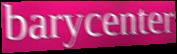
barycenter